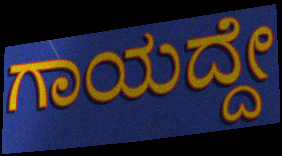
ಗಾಯದ್ದೇ